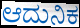
ಆದುನಿಕ